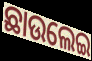
ଛାଉଲେଇ